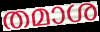
തമാശ